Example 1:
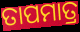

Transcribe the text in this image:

ତାପମାତ୍ର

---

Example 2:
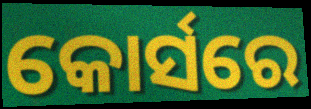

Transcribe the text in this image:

କୋର୍ସରେ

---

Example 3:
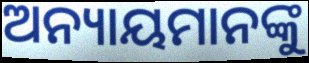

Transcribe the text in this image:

ଅନ୍ୟାୟମାନଙ୍କୁ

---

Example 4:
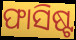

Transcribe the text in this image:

ଫାସିଷ୍ଟ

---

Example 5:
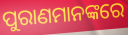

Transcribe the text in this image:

ପୁରାଣମାନଙ୍କରେ